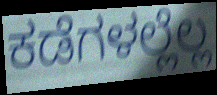
ಕಡೆಗಳಲ್ಲೆಲ್ಲ